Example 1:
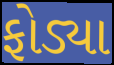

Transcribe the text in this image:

ફોડ્યા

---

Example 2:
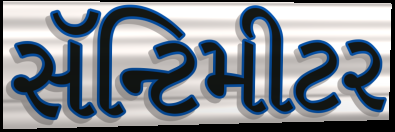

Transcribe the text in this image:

સૅન્ટિમીટર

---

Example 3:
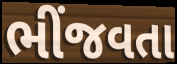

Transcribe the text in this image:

ભીંજવતા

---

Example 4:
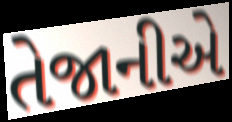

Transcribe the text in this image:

તેજાનીએ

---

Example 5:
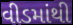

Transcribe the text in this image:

વીડમાંથી